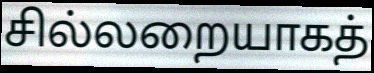
சில்லறையாகத்